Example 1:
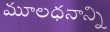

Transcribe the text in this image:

మూలధనాన్ని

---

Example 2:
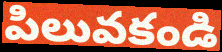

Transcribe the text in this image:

పిలువకండి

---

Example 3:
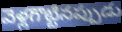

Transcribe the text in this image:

వెళ్లగొట్టినప్పుడు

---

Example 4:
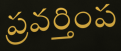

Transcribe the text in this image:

ప్రవర్తింప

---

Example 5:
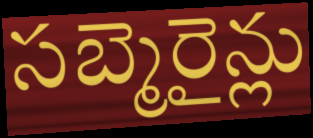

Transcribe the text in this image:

సబ్మెరైన్లు